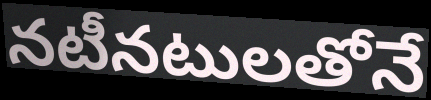
నటీనటులతోనే